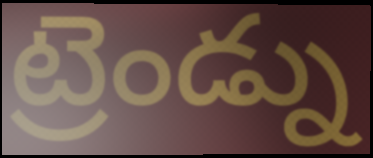
ట్రెండ్ను